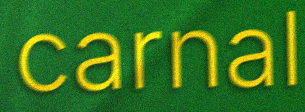
carnal